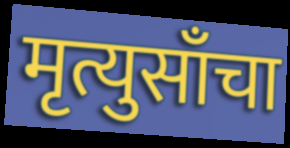
मृत्युसाँचा